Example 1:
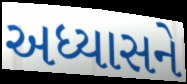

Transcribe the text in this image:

અધ્યાસને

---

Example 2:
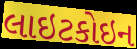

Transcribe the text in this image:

લાઇટકોઇન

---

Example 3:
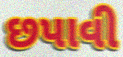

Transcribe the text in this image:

છપાવી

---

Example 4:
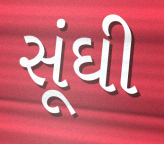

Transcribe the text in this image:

સૂંઘી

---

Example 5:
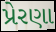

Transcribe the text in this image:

પ્રેરણા